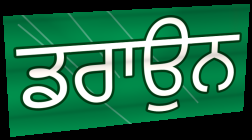
ਡਰਾਉਨ